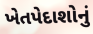
ખેતપેદાશોનું